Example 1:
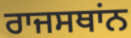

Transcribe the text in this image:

ਰਾਜਸਥਾਂਨ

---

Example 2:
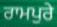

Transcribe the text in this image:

ਰਾਮਪੁਰੇ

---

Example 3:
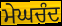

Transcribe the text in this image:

ਮੇਘਚੰਦ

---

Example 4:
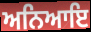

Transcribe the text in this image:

ਅਨਿਆਇ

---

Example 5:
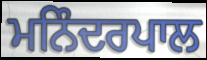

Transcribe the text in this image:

ਮਨਿੰਦਰਪਾਲ